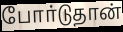
போர்டுதான்